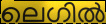
ലെഗിൽ